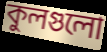
কুলগুলো